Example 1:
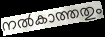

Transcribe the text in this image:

നൽകാത്തതും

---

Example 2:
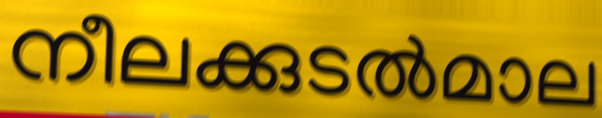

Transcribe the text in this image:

നീലക്കുടൽമാല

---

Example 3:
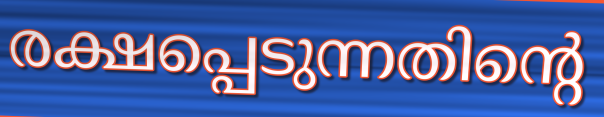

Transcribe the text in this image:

രക്ഷപ്പെടുന്നതിന്റെ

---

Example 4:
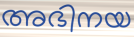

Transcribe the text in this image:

അഭിനയ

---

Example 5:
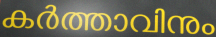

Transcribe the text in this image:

കർത്താവിനും